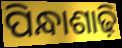
ପିନ୍ଧାଶାଢ଼ି